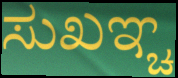
ಸುಖಞ್ಚ